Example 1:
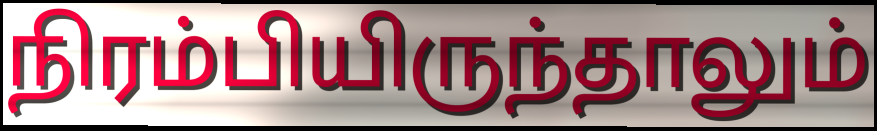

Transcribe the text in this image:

நிரம்பியிருந்தாலும்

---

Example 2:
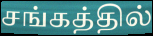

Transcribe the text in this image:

சங்கத்தில்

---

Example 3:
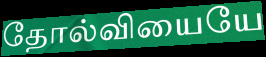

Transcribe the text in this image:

தோல்வியையே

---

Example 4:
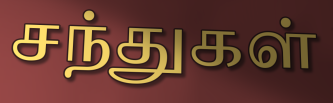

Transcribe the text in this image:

சந்துகள்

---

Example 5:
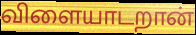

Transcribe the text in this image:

விளையாடறான்